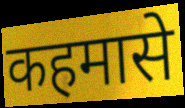
कहमासे